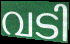
വടി